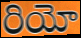
రియో